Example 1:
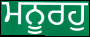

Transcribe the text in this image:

ਮਨੂਰਹੁ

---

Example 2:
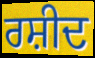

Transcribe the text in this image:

ਰਸ਼ੀਦ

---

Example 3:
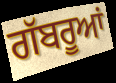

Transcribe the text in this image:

ਗੱਬਰੂਆਂ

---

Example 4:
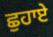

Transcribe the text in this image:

ਛੁਹਾਏ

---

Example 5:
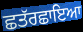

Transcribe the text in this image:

ਛਤੱਰਛਾਇਆ